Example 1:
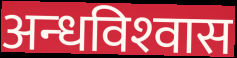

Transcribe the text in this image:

अन्‍धविश्‍वास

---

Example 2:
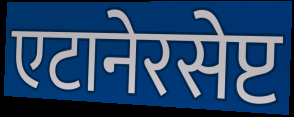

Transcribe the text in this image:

एटानेरसेप्ट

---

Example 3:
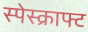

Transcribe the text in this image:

स्पेस्क्राफ्ट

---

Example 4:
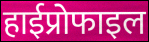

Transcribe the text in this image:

हाईप्रोफाइल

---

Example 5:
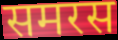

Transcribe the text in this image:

समरस